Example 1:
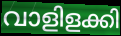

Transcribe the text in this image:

വാളിളക്കി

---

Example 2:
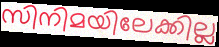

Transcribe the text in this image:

സിനിമയിലേക്കില്ല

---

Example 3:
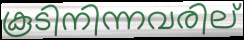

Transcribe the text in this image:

കൂടിനിന്നവരില്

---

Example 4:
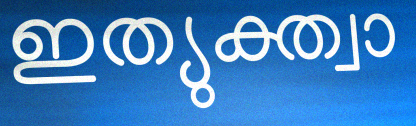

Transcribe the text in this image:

ഇത്യുക്ത്വാ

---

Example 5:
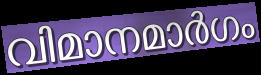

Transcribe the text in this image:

വിമാനമാർഗം